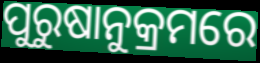
ପୁରୁଷାନୁକ୍ରମରେ